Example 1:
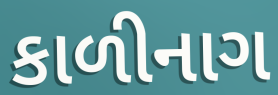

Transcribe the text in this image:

કાળીનાગ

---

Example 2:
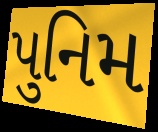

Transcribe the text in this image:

પુનિમ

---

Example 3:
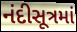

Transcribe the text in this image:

નંદીસૂત્રમાં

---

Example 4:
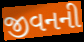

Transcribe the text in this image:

જીવનની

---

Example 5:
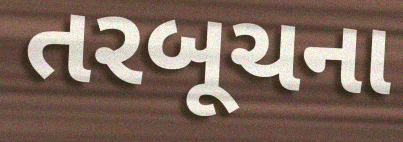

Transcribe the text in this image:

તરબૂચના